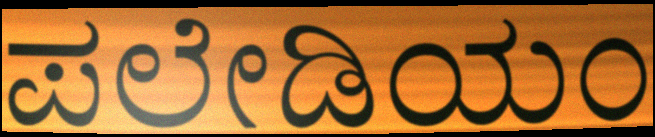
ಪಲೇಡಿಯಂ